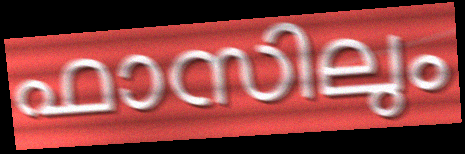
ഫാസിലും